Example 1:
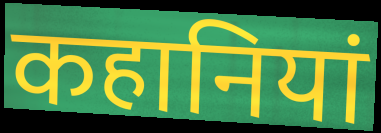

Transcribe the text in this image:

कहानियां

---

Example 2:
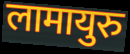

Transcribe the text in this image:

लामायुरु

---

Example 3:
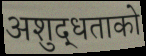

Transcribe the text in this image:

अशुद्धताको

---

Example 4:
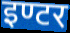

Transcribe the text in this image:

इण्टर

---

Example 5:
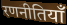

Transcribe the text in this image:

रणनीतियाँ